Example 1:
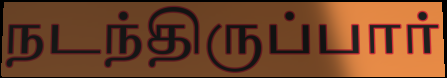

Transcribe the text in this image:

நடந்திருப்பார்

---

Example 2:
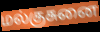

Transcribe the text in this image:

மல்குசுனை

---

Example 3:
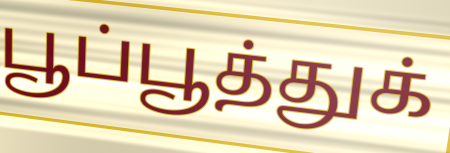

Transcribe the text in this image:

பூப்பூத்துக்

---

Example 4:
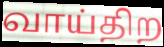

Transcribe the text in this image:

வாய்திற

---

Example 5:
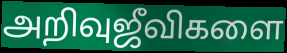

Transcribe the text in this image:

அறிவுஜீவிகளை